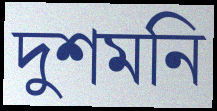
দুশমনি